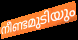
നീണ്ടമുടിയും